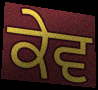
ਕੇਵ